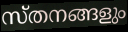
സ്തനങ്ങളും